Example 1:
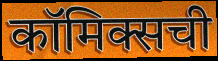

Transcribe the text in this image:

कॉमिक्सची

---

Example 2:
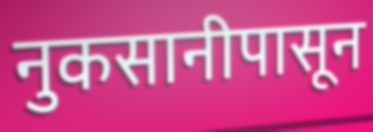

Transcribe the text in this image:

नुकसानीपासून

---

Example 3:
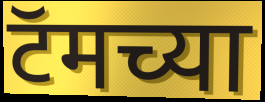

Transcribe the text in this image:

टॅमच्या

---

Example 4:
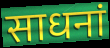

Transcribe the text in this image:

साधनां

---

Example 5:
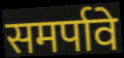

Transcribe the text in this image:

समर्पावे